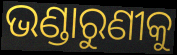
ଭଣ୍ଡାରୁଣୀକୁ